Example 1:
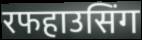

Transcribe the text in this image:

रफहाउसिंग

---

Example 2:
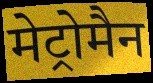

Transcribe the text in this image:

मेट्रोमैन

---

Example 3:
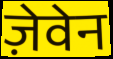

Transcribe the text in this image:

ज़ेवेन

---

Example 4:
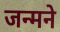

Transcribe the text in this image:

जन्मने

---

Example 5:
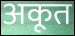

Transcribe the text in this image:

अकूत